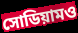
সোডিয়ামও